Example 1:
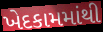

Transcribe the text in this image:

ખેદકામમાંથી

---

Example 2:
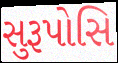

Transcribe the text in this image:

સુરૂપોસિ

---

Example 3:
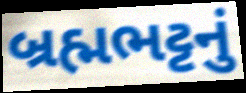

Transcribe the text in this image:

બ્રહ્મભટ્ટનું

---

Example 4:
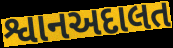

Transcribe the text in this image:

શ્વાનઅદાલત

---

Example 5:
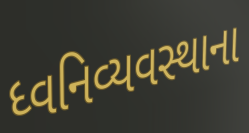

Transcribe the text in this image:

ધ્વનિવ્યવસ્થાના